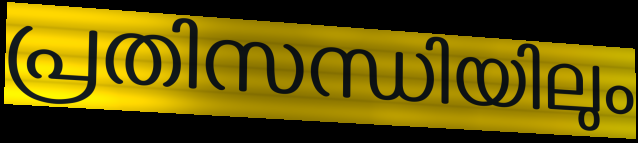
പ്രതിസന്ധിയിലും